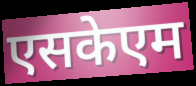
एसकेएम